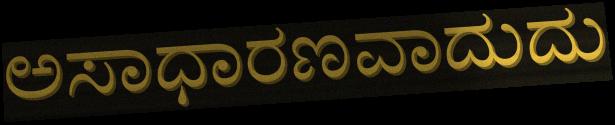
ಅಸಾಧಾರಣವಾದುದು